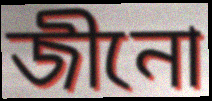
জীনো